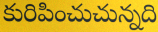
కురిపించుచున్నది